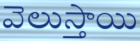
వెలుస్తాయి